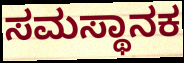
ಸಮಸ್ಥಾನಕ